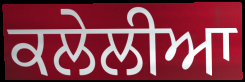
ਕਲੇਲੀਆ